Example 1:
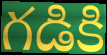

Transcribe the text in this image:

గడికి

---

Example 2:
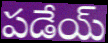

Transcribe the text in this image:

పడేయ్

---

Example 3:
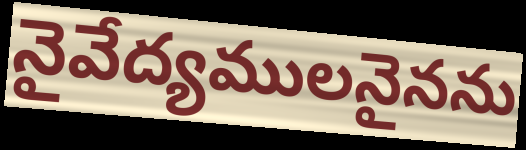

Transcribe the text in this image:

నైవేద్యములనైనను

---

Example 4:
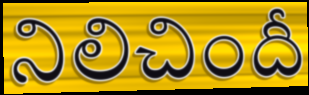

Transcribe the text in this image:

నిలిచిందీ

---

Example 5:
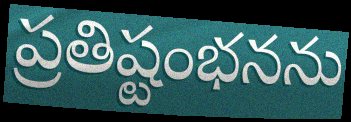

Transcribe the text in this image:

ప్రతిష్టంభనను